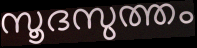
സൂദസുത്തം